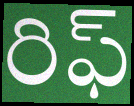
రిఫ్